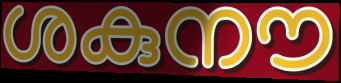
ശകുനൗ